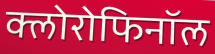
क्लोरोफिनॉल